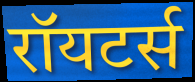
रॉयटर्स